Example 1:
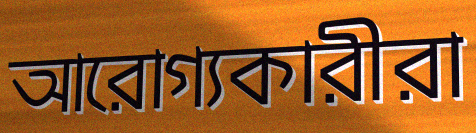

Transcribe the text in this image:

আরোগ্যকারীরা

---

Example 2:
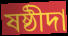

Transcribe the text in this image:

ষষ্ঠীদা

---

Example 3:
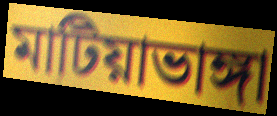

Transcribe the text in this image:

মাটিয়াভাঙ্গা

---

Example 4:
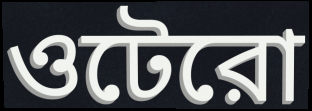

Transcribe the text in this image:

ওটেরো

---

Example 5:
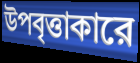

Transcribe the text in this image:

উপবৃত্তাকারে